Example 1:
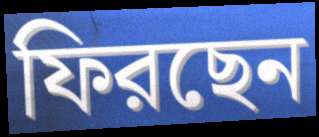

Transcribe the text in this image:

ফিরছেন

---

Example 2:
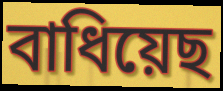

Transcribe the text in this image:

বাধিয়েছ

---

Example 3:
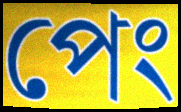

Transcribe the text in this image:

পেং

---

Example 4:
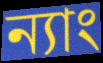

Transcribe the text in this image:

ন্যাং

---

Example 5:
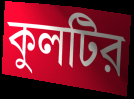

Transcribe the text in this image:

কুলটির